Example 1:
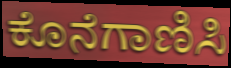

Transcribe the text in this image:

ಕೊನೆಗಾಣಿಸಿ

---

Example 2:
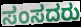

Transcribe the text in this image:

ಸಂಸದರು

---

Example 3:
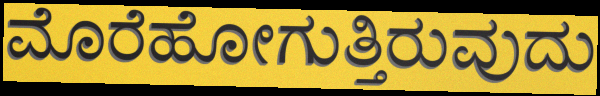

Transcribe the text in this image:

ಮೊರೆಹೋಗುತ್ತಿರುವುದು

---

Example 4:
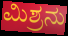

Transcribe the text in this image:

ಮಿಶ್ರನು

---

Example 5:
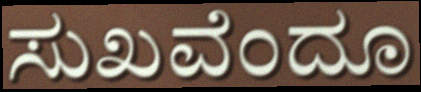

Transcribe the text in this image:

ಸುಖವೆಂದೂ